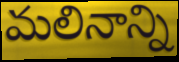
మలినాన్ని